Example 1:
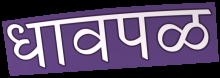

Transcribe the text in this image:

धावपळ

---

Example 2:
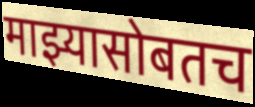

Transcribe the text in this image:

माझ्यासोबतच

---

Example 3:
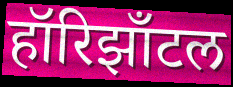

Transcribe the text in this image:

हॉरिझाँटल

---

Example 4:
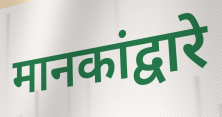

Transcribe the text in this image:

मानकांद्वारे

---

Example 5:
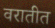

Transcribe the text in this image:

वरातीत